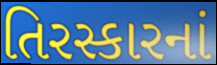
તિરસ્કારનાં